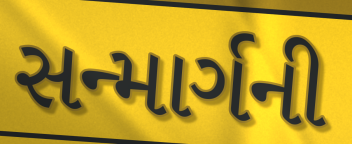
સન્માર્ગની